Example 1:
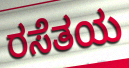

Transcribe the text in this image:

ರಸೆತಯ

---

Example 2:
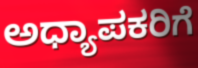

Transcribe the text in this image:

ಅಧ್ಯಾಪಕರಿಗೆ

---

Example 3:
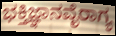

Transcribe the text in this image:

ಭಕ್ತಿಜ್ಞಾನವೈರಾಗ್ಯ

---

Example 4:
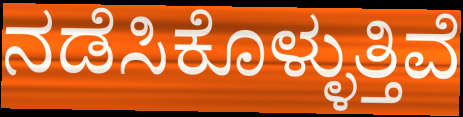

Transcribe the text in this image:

ನಡೆಸಿಕೊಳ್ಳುತ್ತಿವೆ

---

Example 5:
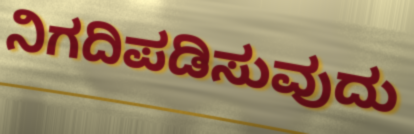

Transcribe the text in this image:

ನಿಗದಿಪಡಿಸುವುದು